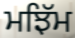
ਮਝਿੱਮ